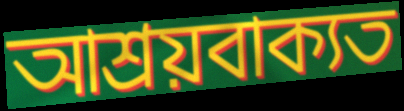
আশ্ৰয়বাক্যত